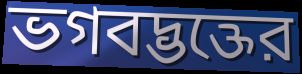
ভগবদ্ভক্তের